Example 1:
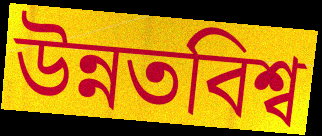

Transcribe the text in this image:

উন্নতবিশ্ব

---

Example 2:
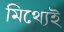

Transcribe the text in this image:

মিথ্যেই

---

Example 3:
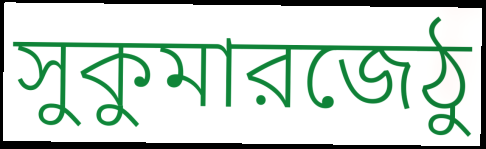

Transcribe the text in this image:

সুকুমারজেঠু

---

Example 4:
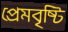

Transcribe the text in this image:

প্রেমবৃষ্টি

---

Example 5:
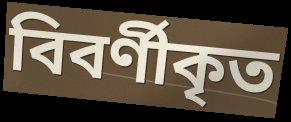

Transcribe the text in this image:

বিবর্ণীকৃত